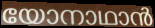
യോനാഥാൻ